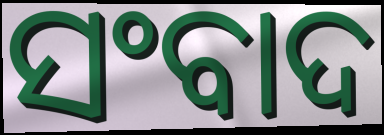
ସଂବାଦ